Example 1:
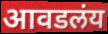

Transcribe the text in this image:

आवडलंय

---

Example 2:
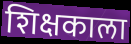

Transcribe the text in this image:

शिक्षकाला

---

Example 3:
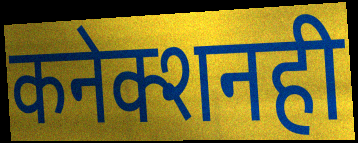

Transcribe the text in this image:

कनेक्शनही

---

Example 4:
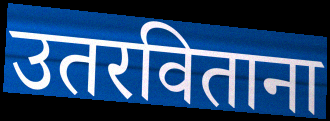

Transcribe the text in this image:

उतरविताना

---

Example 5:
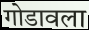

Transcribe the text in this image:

गोडावला